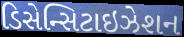
ડિસેન્સિટાઇઝેશન